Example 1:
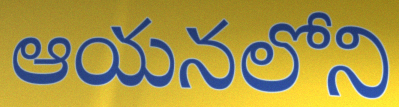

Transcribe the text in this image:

ఆయనలోని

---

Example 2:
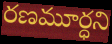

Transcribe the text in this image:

రణమూర్ధని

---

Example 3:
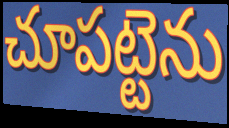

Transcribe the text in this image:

చూపట్టెను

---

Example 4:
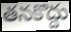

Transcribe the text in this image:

తనకొద్దు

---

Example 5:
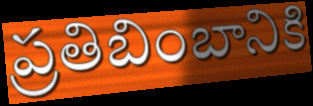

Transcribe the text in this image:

ప్రతిబింబానికి